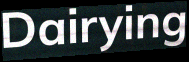
Dairying